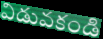
విడువకండి